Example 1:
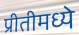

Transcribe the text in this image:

प्रीतीमध्ये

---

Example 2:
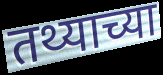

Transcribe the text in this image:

तथ्याच्या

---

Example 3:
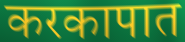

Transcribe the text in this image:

करकापात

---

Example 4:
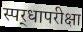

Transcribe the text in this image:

स्पर्धापरीक्षा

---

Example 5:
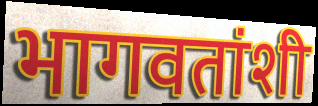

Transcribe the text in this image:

भागवतांशी